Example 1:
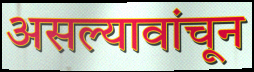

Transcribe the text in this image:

असल्यावांचून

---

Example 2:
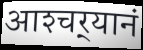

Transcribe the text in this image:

आश्चर्यानं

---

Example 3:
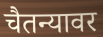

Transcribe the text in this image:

चैतन्यावर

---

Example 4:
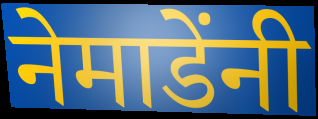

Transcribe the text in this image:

नेमाडेंनी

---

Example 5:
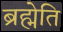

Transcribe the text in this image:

ब्रह्मेति